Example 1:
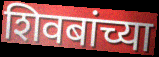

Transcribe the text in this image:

शिवबांच्या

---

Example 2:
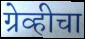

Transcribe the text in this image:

ग्रेव्हीचा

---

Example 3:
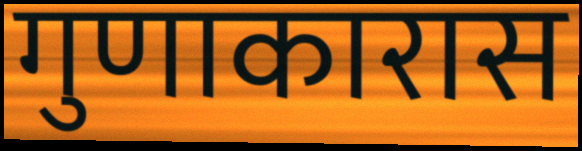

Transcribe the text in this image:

गुणाकारास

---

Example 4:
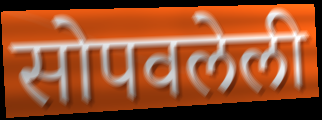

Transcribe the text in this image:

सोपवलेली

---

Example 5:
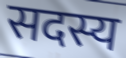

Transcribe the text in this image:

सदस्य